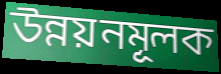
উন্নয়নমূলক